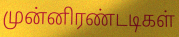
முன்னிரண்டடிகள்